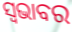
ସ୍ୱଭାବର